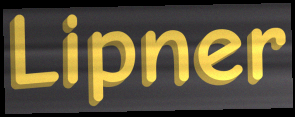
Lipner